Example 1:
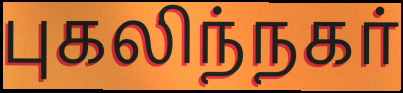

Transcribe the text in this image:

புகலிந்நகர்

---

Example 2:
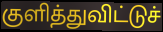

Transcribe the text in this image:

குளித்துவிட்டுச்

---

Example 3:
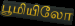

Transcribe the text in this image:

பூமியிலோ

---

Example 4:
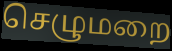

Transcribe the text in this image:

செழுமறை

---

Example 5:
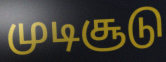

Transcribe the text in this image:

முடிசூடு